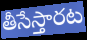
తీసేస్తారట